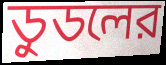
ডুডলের